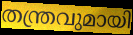
തന്ത്രവുമായി